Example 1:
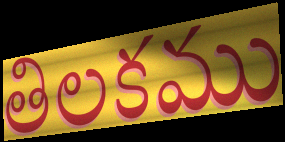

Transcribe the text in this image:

తిలకము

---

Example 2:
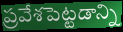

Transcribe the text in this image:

ప్రవేశపెట్టడాన్ని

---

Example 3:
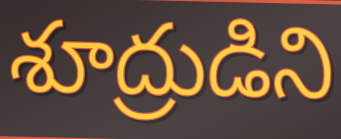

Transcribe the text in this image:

శూద్రుడిని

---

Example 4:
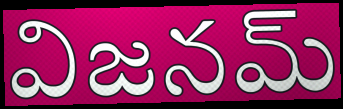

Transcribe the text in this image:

విజనమ్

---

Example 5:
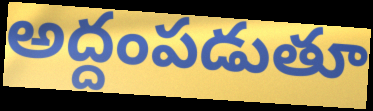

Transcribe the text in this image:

అద్దంపడుతూ